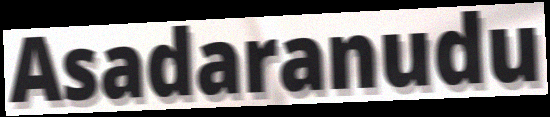
Asadaranudu